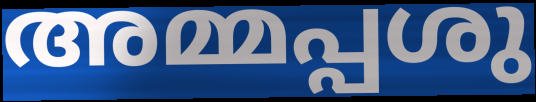
അമ്മപ്പശു